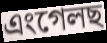
এংগেলছ